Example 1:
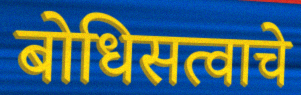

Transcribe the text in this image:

बोधिसत्वाचे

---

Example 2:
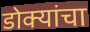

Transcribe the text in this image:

डोक्यांचा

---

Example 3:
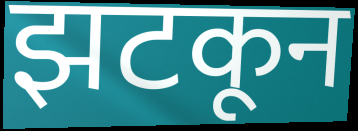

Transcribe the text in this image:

झटकून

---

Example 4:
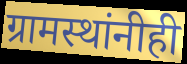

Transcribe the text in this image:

ग्रामस्थांनीही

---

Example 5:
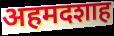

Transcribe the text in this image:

अहमदशाह